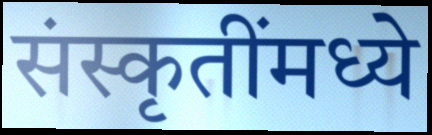
संस्कृतींमध्ये